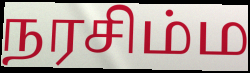
நரசிம்ம